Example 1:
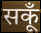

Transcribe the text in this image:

सकूँ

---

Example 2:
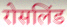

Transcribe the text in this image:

रोसलिंड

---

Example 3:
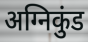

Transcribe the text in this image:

अग्निकुंड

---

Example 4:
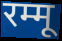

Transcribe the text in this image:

रम्मू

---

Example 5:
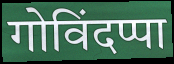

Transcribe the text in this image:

गोविंदप्पा